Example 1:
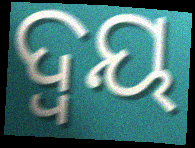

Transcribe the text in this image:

ଦ୍ୱୟ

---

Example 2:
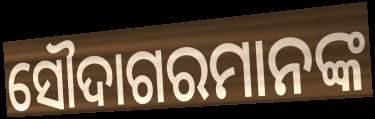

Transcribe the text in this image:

ସୌଦାଗରମାନଙ୍କ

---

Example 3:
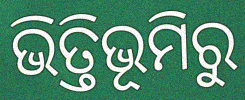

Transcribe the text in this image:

ଭିତ୍ତିଭୂମିରୁ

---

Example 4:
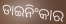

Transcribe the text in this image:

ଡାଇନିଂକାର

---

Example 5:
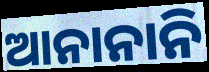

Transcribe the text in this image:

ଆନାନାନି